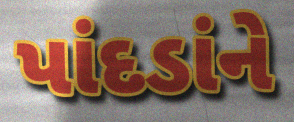
પાંદડાંને